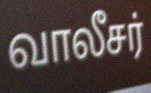
வாலீசர்